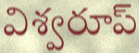
విశ్వరూప్